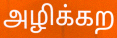
அழிக்கற